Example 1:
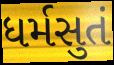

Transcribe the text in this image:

ધર્મસુતં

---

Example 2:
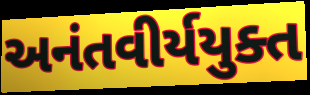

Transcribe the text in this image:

અનંતવીર્યયુક્ત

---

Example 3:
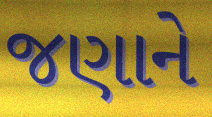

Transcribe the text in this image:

જણાને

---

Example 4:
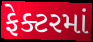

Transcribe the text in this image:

ફેક્ટરમાં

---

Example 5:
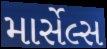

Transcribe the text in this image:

માર્સેલ્સ